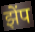
झेंप